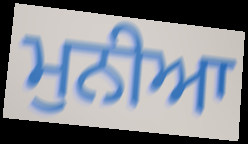
ਮੁਨੀਆ